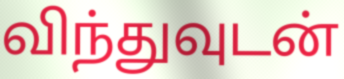
விந்துவுடன்